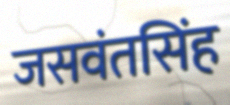
जसवंतसिंह